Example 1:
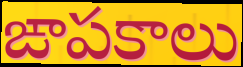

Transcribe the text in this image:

ఙాపకాలు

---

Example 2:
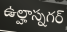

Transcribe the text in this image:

ఉల్హాస్నగర్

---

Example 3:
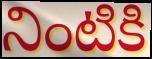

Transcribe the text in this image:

నింటికి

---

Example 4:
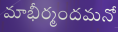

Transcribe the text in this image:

మాభీర్మందమనో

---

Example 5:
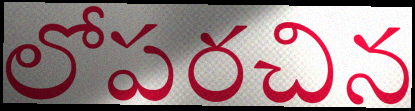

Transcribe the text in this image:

లోపరచిన